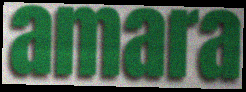
amara